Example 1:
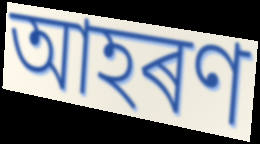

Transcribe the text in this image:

আহৰণ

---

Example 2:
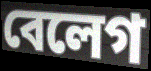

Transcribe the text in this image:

বেলেগ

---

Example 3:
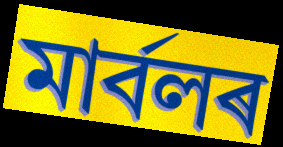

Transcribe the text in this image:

মাৰ্বলৰ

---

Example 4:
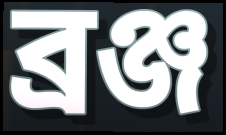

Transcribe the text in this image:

ব্ৰঞ্জ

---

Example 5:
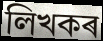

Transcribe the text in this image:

লিখকৰ